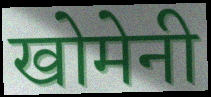
खोमेनी